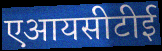
एआयसीटीई